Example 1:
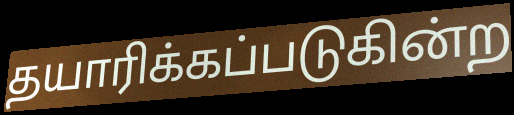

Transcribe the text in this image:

தயாரிக்கப்படுகின்ற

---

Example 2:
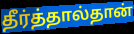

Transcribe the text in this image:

தீர்த்தால்தான்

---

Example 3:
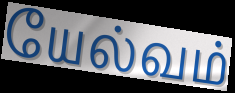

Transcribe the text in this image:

யேல்வம்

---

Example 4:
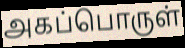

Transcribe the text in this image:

அகப்பொருள்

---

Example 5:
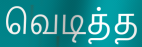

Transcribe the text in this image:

வெடித்த